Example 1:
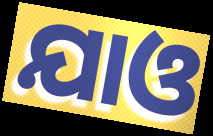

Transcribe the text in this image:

ଯାଓ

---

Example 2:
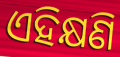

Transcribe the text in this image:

ଏହିକ୍ଷଣି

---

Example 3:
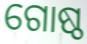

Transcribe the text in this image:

ଗୋଷ୍ଠ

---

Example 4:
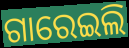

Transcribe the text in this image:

ଗାରେଇଲି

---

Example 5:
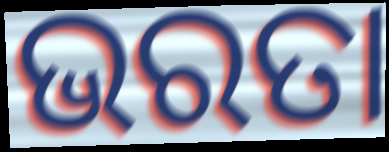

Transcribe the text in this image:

ଭରତା